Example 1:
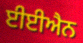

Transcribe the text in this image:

ਈਈਐਨ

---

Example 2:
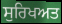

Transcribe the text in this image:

ਸੁਰਿਖਅਤ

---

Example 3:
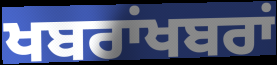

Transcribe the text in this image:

ਖਬਰਾਂਖਬਰਾਂ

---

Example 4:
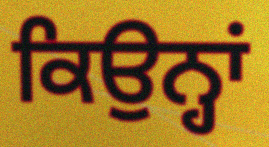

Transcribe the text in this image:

ਕਿਉਨ੍ਹਾਂ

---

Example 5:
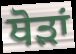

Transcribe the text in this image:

ਥੋੜਾਂ